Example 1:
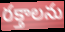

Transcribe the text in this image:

రక్తాలను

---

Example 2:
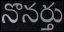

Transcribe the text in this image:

నొనర్తు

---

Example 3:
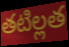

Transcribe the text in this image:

తటిల్లత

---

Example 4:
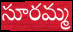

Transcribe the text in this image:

సూరమ్మ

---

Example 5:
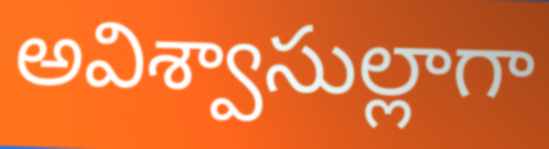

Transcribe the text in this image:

అవిశ్వాసుల్లాగా